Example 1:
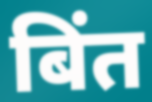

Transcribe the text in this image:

बिंत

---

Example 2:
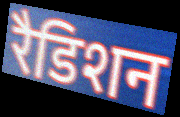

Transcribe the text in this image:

रैडिशन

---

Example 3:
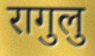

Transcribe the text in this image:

रागुलु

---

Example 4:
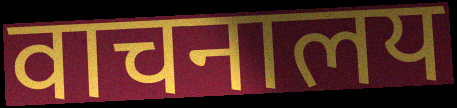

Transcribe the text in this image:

वाचनालय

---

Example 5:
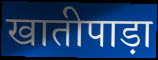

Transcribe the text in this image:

खातीपाड़ा